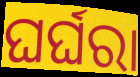
ଘର୍ଘରା